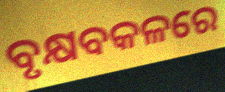
ବୃକ୍ଷବକଳରେ